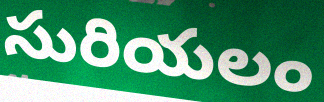
సురియలం